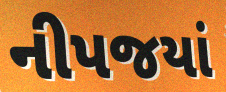
નીપજયાં